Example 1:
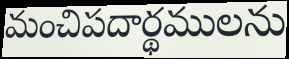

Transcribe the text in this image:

మంచిపదార్థములను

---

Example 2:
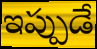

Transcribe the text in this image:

ఇప్పుడే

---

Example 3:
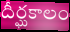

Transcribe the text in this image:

దీర్ఘకాలం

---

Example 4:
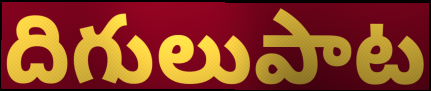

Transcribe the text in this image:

దిగులుపాట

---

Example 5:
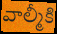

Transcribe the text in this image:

వాల్మీకి